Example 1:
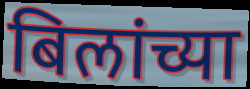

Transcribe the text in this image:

बिलांच्या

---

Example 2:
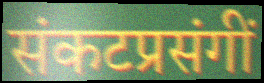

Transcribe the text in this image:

संकटप्रसंगीं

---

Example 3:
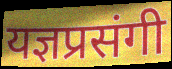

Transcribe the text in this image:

यज्ञप्रसंगी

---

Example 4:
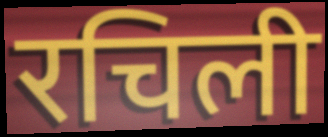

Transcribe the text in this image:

रचिली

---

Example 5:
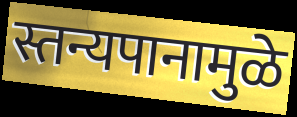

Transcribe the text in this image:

स्तन्यपानामुळे